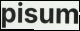
pisum